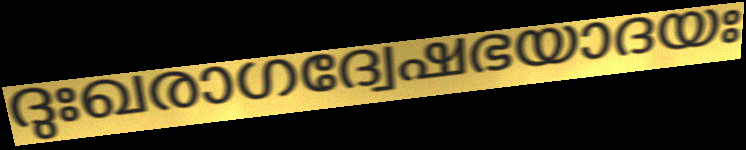
ദുഃഖരാഗദ്വേഷഭയാദയഃ